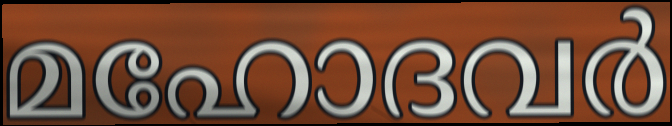
മഹോദവർ